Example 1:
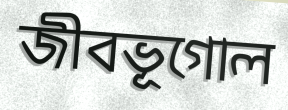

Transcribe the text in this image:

জীবভূগোল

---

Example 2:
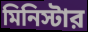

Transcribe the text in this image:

মিনিস্টার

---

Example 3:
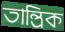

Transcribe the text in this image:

তান্ত্রিক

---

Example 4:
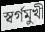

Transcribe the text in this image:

স্বর্গমুখী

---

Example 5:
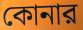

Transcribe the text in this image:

কোনার